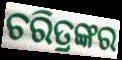
ଚରିତ୍ରଙ୍କର